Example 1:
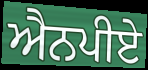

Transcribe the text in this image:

ਐਨਪੀਏ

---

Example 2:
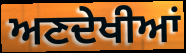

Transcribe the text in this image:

ਅਣਦੇਖੀਆਂ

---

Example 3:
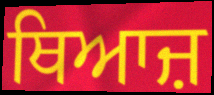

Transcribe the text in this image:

ਥਿਆਜ਼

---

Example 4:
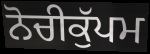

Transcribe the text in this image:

ਨੋਚੀਕੁੱਪਮ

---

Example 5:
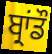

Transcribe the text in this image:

ਬ੍ਰਾਂਡੌ